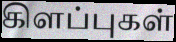
கிளப்புகள்